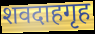
शवदाहगृह